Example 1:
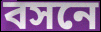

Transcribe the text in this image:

বসনে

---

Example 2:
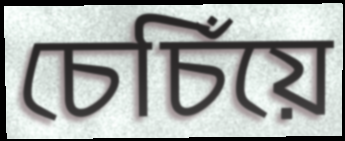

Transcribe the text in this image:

চেচিঁয়ে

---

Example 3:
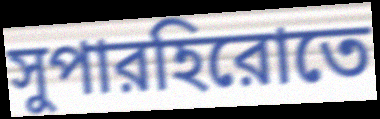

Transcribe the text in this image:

সুপারহিরোতে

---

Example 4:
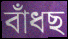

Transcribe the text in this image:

বাঁধছ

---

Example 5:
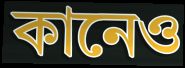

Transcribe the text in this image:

কানেও